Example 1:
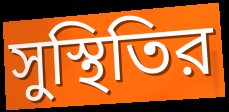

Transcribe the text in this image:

সুস্থিতির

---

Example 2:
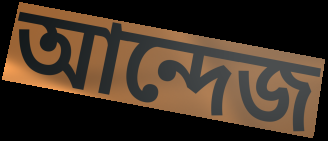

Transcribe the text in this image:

আন্দেজ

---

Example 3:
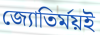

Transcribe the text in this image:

জ্যোতির্ময়ই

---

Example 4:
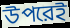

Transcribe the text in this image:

উপরেই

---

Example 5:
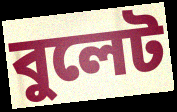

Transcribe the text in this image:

বুলেট